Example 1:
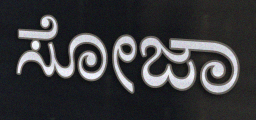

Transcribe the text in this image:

ಸೋಜಾ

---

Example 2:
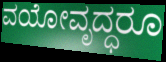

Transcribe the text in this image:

ವಯೋವೃದ್ಧರೂ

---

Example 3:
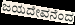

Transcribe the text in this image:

ಜಯದೇವನೆಂದ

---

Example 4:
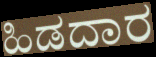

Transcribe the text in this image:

ಹಿಡದಾರ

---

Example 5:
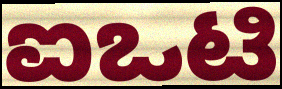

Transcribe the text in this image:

ಐಒಟಿ